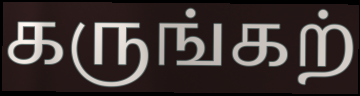
கருங்கற்